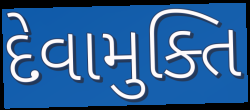
દેવામુક્તિ